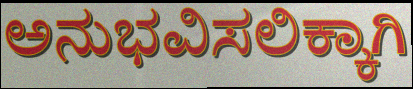
ಅನುಭವಿಸಲಿಕ್ಕಾಗಿ